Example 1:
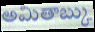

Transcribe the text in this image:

అమితాబ్కు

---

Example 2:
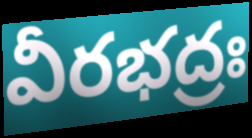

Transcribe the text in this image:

వీరభద్రః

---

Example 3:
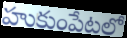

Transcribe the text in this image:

హుకుంపేటలో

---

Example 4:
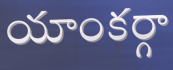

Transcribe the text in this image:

యాంకర్గా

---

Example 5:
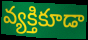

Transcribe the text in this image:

వ్యక్తికూడా